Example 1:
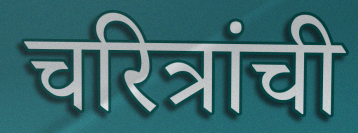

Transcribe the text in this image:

चरित्रांची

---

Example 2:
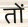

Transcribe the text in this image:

तों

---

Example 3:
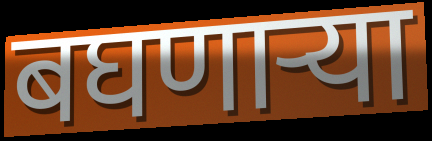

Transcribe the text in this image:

बघणाऱ्या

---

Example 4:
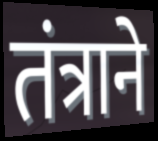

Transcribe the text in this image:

तंत्राने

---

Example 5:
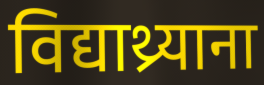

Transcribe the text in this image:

विद्याथ्र्याना